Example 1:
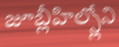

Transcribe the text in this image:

జూబ్లీహిల్స్లోని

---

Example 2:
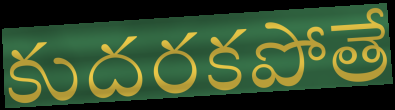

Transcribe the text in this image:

కుదరకపోతే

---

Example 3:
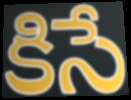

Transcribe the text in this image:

కిసే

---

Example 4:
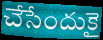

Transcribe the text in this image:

చేసేందుకై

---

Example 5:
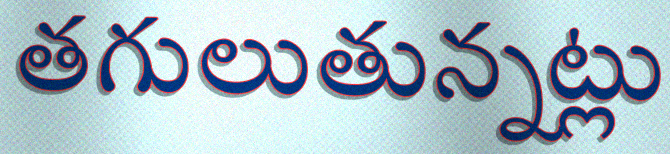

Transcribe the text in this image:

తగులుతున్నట్లు